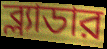
ব্ল্যাডার